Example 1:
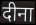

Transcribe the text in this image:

दीना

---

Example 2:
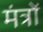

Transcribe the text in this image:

मंत्रों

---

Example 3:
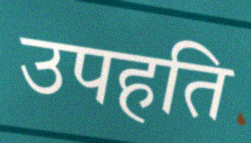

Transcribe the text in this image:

उपहति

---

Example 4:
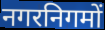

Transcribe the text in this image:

नगरनिगमों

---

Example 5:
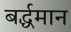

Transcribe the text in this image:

बर्द्धमान